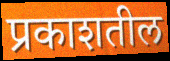
प्रकाशतील